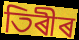
তিৰীৰ